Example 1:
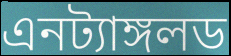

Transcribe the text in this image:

এনট্যাঙ্গলড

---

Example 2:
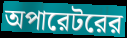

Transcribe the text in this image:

অপারেটরের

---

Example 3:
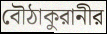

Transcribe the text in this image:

বৌঠাকুরানীর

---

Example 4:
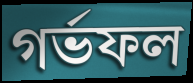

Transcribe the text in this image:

গর্ভফল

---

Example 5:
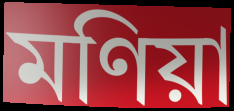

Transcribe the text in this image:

মণিয়া